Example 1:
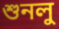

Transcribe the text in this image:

শুনলু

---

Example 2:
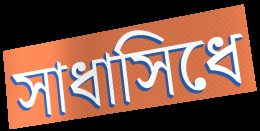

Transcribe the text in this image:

সাধাসিধে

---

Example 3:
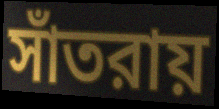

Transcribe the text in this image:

সাঁতরায়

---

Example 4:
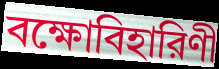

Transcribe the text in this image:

বক্ষোবিহারিণী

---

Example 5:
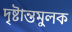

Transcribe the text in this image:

দৃষ্টান্তমুলক